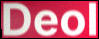
Deol